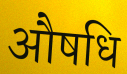
औषधि